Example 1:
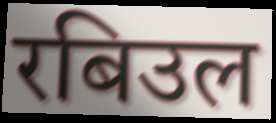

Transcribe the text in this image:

रबिउल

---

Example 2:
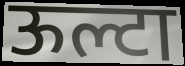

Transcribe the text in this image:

ऊल्टा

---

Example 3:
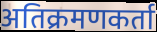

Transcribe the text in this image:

अतिक्रमणकर्ता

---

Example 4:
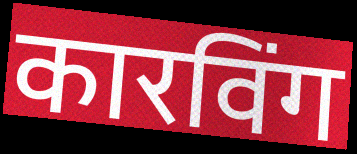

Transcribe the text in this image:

कारविंग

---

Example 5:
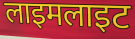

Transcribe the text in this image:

लाइमलाइट